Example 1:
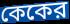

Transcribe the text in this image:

কেকের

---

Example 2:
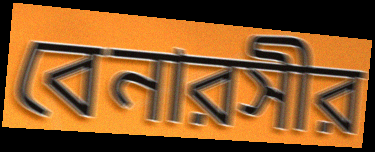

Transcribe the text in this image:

বেনারসীর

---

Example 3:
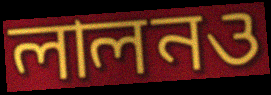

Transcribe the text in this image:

লালনও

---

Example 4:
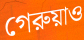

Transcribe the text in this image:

গেরুয়াও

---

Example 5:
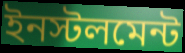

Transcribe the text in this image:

ইনস্টলমেন্ট